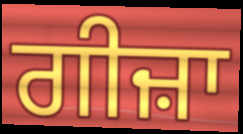
ਗੀਜ਼ਾ